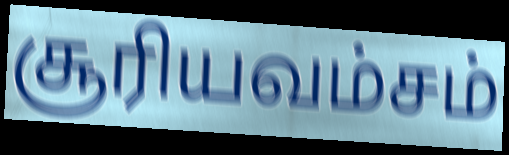
சூரியவம்சம்